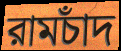
রামচাঁদ